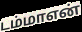
டம்மாஎன்